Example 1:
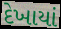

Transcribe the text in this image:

દેખાયાં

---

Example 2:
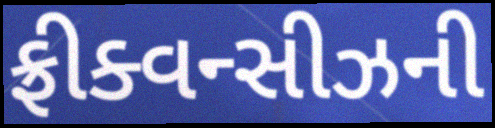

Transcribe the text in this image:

ફ્રીક્વન્સીઝની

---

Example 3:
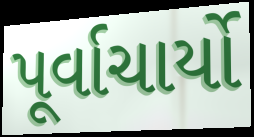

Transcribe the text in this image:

પૂર્વાચાર્યો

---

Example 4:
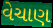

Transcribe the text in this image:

વેચાણ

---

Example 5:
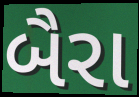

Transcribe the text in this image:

બૈરા